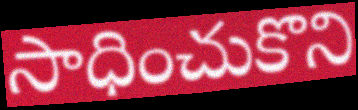
సాధించుకొని